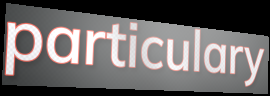
particulary